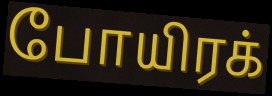
போயிரக்